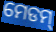
ମେଡମ୍